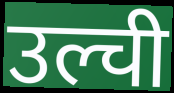
उल्ची